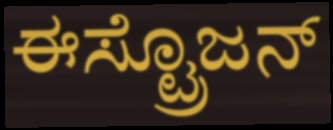
ಈಸ್ಟ್ರೊಜನ್